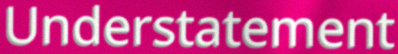
Understatement